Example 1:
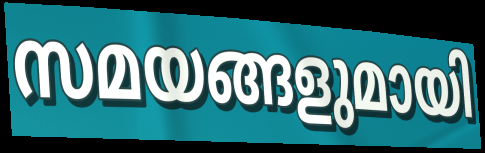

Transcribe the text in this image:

സമയങ്ങളുമായി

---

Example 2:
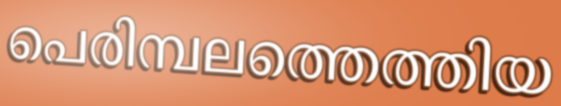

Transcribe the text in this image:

പെരിമ്പലത്തെത്തിയ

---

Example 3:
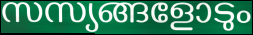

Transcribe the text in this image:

സസ്യങ്ങളോടും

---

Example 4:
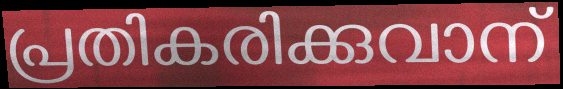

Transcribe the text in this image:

പ്രതികരിക്കുവാന്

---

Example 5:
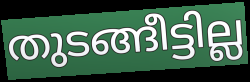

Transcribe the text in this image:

തുടങ്ങീട്ടില്ല